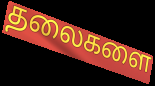
தலைகளை